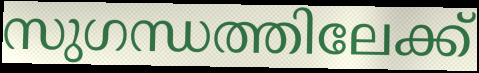
സുഗന്ധത്തിലേക്ക്